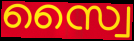
സ്വൈ